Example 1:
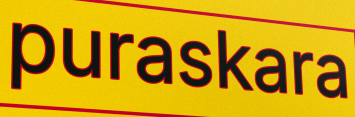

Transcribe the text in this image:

puraskara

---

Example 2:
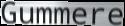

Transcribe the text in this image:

Gummere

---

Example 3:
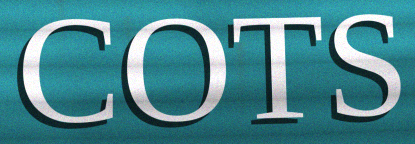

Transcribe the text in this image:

COTS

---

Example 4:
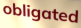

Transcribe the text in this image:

obligated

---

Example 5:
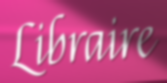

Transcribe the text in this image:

Libraire